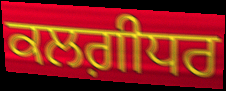
ਕਲਗ਼ੀਧਰ